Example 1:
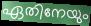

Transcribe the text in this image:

ഏതിനേയും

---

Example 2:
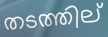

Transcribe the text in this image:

തടത്തില്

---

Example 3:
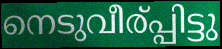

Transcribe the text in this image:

നെടുവീര്പ്പിട്ടു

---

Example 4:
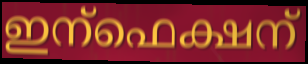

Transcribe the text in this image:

ഇന്ഫെക്ഷന്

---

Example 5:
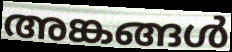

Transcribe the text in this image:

അങ്കങ്ങൾ